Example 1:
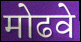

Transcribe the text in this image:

मोढवे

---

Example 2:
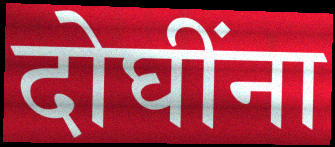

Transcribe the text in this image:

दोघींना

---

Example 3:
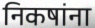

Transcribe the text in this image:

निकषांना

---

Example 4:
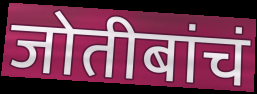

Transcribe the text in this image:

जोतीबांचं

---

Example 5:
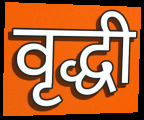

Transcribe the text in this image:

वृद्धी